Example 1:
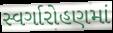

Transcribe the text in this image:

સ્વર્ગારોહણમાં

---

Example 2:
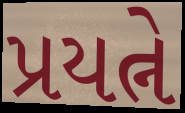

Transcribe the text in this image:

પ્રયત્ને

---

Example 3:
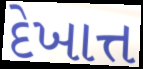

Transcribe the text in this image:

દેખાત્ત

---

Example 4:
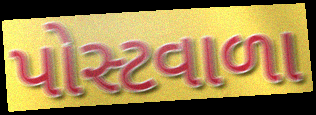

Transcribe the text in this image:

પોસ્ટવાળા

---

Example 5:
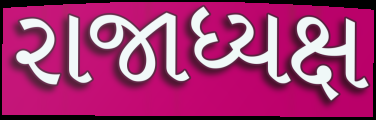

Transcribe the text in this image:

રાજાધ્યક્ષ